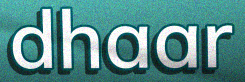
dhaar